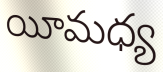
యీమధ్య